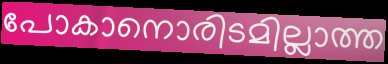
പോകാനൊരിടമില്ലാത്ത